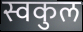
स्वकुल